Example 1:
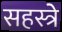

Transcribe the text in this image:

सहस्त्रे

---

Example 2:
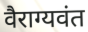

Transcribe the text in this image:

वैराग्यवंत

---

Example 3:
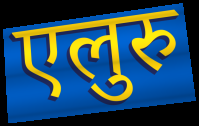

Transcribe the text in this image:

एलुरु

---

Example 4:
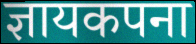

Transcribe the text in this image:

ज्ञायकपना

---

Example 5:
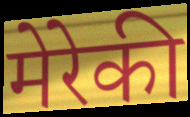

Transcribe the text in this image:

मेरेकी